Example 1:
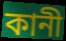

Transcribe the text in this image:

কানী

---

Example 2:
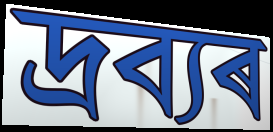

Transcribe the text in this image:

দ্ৰব্যৰ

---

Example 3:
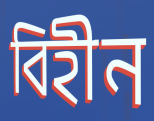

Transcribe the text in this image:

বিহীন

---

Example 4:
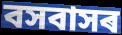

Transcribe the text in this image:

বসবাসৰ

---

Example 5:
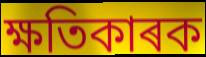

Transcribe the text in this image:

ক্ষতিকাৰক